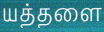
யத்தளை